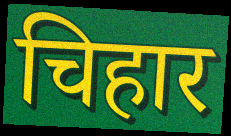
चिहार